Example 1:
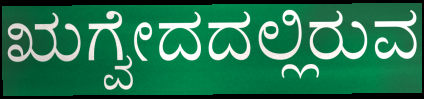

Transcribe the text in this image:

ಋಗ್ವೇದದಲ್ಲಿರುವ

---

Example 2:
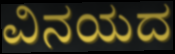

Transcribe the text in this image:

ವಿನಯದ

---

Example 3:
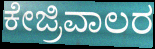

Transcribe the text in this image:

ಕೇಜ್ರಿವಾಲರ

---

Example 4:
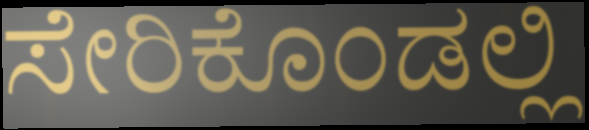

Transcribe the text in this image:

ಸೇರಿಕೊಂಡಲ್ಲಿ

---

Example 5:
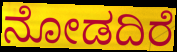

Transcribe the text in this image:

ನೋಡದಿರೆ